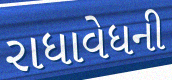
રાધાવેધની